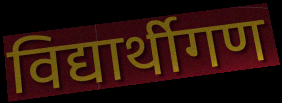
विद्यार्थीगण